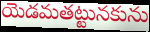
యెడమతట్టునకును